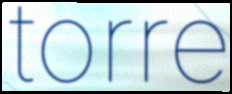
torre